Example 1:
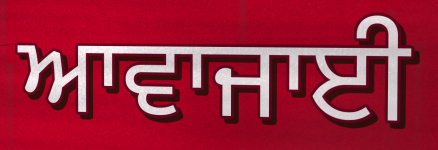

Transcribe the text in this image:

ਆਵਾਜਾਈ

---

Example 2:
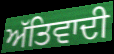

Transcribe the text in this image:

ਅੱਤਿਵਾਦੀ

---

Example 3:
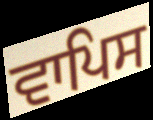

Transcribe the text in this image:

ਵਾਪਿਸ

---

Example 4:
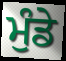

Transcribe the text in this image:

ਮੁੰਡੇ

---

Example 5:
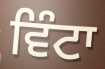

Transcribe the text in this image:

ਵਿੰਟਾ